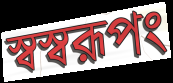
স্বস্বরূপং